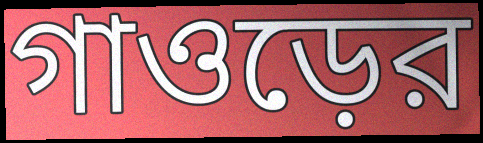
গাওড়ের